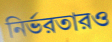
নির্ভরতারও